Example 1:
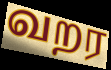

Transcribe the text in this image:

வறர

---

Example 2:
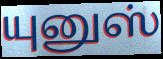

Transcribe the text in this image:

யுனுஸ்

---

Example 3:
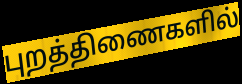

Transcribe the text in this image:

புறத்திணைகளில்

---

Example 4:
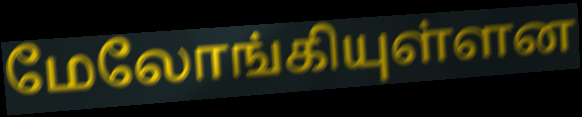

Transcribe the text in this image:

மேலோங்கியுள்ளன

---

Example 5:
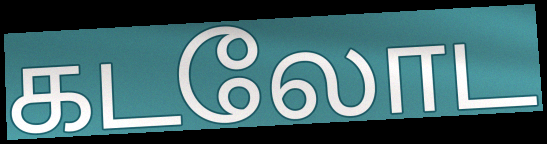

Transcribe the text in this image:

கடலோட